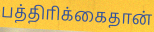
பத்திரிக்கைதான்